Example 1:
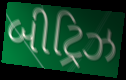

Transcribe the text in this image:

બીટ્રિઝ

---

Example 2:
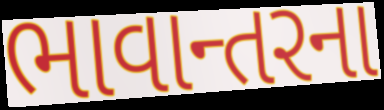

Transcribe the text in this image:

ભાવાન્તરના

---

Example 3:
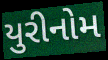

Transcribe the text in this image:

યુરીનોમ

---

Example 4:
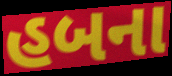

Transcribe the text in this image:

હબના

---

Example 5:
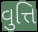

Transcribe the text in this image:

વુત્તિ